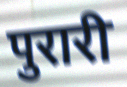
पुरारी